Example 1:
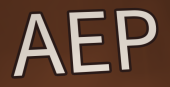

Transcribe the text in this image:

AEP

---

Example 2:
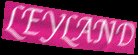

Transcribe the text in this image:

LEYLAND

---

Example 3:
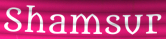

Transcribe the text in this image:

Shamsur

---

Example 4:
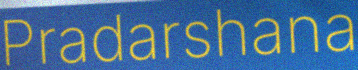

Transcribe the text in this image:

Pradarshana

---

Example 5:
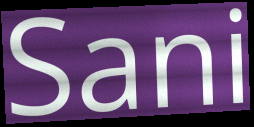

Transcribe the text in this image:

Sani